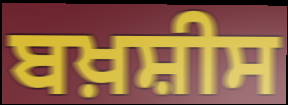
ਬਖ਼ਸ਼ੀਸ